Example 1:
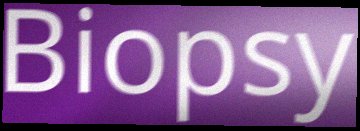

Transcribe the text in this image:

Biopsy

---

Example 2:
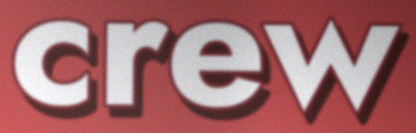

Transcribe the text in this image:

crew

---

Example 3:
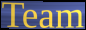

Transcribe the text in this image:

Team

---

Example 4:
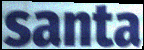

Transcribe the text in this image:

santa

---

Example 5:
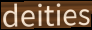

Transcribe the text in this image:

deities